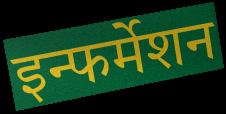
इन्फर्मेशन